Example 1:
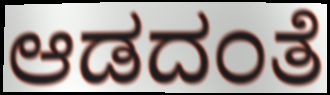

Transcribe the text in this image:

ಆಡದಂತೆ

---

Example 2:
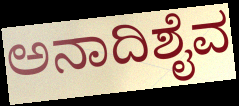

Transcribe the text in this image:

ಅನಾದಿಶೈವ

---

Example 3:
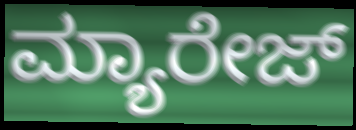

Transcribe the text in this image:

ಮ್ಯಾರೇಜ್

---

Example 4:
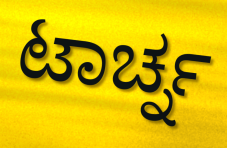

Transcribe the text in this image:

ಟಾರ್ಚ್ನ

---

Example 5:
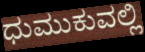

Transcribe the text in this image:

ಧುಮುಕುವಲ್ಲಿ